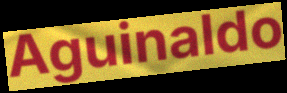
Aguinaldo